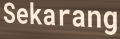
Sekarang